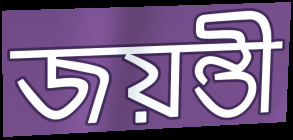
জয়ন্তী